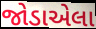
જોડાએલા